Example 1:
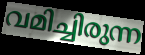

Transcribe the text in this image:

വമിച്ചിരുന്ന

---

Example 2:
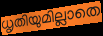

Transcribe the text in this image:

ധൃതിയുമില്ലാതെ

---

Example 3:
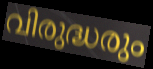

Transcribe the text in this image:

വിരുദ്ധരും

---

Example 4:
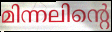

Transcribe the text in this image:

മിന്നലിന്റെ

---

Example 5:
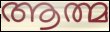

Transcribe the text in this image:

ആത്മ